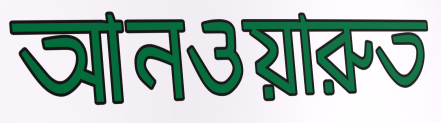
আনওয়ারুত